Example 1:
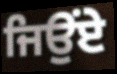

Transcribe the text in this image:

ਜਿਉਂਏ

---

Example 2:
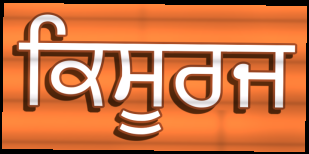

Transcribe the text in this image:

ਕਿਸੂਰਜ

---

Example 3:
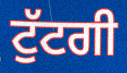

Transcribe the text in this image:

ਟੁੱਟਗੀ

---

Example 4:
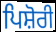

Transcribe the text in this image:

ਪਿਸ਼ੋਰੀ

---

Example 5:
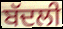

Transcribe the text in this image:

ਬੱਦਲੀ